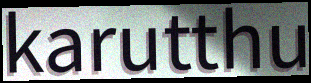
karutthu